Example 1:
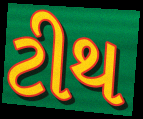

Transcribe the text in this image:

ટીથ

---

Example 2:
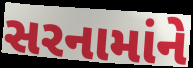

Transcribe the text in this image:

સરનામાંને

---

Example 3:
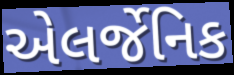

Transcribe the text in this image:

એલર્જેનિક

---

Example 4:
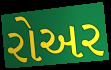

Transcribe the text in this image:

રોઅર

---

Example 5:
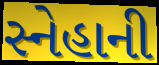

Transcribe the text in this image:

સ્નેહાની